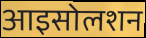
आइसोलशन